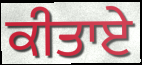
ਕੀਤਾਏ